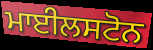
ਮਾਈਲਸਟੋਨ